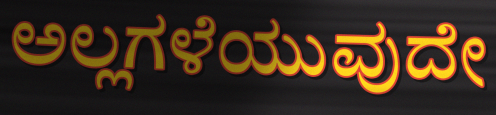
ಅಲ್ಲಗಳೆಯುವುದೇ